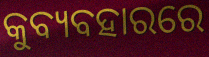
କୁବ୍ୟବହାରରେ